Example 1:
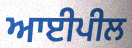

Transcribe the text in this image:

ਆਈਪੀਲ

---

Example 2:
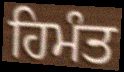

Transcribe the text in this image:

ਹਿਮੰਤ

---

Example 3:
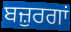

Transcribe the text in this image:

ਬਜ਼ੁਰਗਾਂ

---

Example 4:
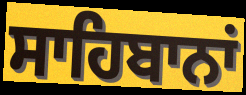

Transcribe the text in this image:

ਸਾਹਿਬਾਨਾਂ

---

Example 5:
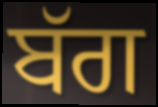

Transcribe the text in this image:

ਬੱਗ